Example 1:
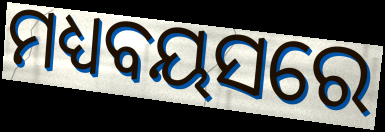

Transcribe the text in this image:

ମଧ୍ୟବୟସରେ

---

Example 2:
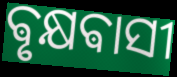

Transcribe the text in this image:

ଵୃକ୍ଷଵାସୀ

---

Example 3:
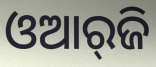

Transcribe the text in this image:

ଓଆର୍‌ଜି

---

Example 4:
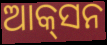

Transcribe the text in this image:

ଆକ୍‌ସନ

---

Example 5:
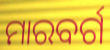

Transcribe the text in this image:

ମାରବର୍ଗ